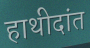
हाथीदांत